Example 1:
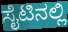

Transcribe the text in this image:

ಸೈಟಿನಲ್ಲಿ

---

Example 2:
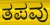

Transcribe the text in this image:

ತಪವು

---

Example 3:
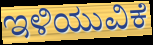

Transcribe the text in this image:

ಇಳಿಯುವಿಕೆ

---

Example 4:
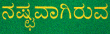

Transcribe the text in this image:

ನಷ್ಟವಾಗಿರುವ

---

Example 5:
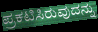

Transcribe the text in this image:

ಪ್ರಕಟಿಸಿರುವುದನ್ನು